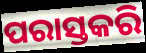
ପରାସ୍ତକରି